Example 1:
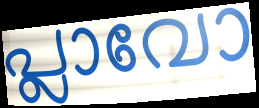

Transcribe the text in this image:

പ്ലാവോ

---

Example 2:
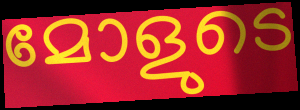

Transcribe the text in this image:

മോളുടെ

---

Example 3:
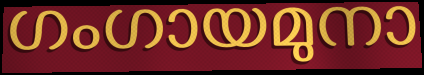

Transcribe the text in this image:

ഗംഗായമുനാ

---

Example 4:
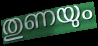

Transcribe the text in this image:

തുണയും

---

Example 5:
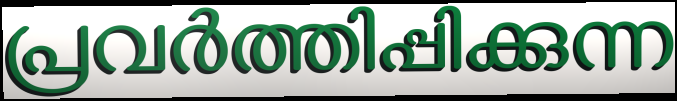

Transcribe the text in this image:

പ്രവർത്തിപ്പിക്കുന്ന